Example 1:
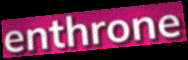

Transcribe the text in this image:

enthrone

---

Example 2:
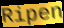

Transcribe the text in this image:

Ripen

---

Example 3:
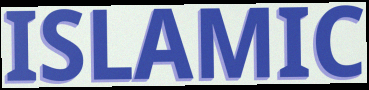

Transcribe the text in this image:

ISLAMIC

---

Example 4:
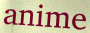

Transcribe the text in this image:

anime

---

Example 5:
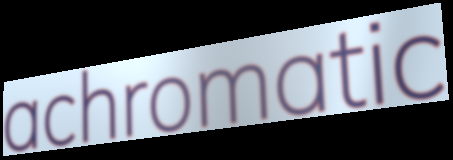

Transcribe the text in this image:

achromatic